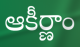
ఆకీర్ణాం